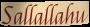
Sallallahu